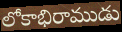
లోకాభిరాముడు